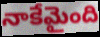
నాకేమైంది